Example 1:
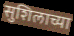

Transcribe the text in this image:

सुशिलाच्या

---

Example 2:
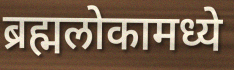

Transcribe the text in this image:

ब्रह्मलोकामध्ये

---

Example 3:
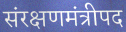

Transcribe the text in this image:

संरक्षणमंत्रीपद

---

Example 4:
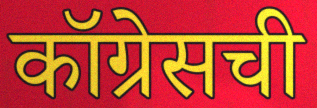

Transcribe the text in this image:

कॉग्रेसची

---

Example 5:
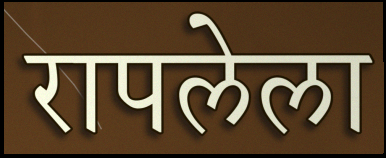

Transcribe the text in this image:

रापलेला